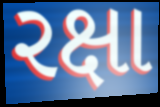
રક્ષા